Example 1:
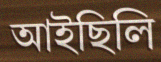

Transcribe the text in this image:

আইছিলি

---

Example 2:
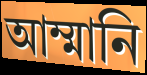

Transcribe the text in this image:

আম্মানি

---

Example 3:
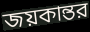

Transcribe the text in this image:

জয়কান্তর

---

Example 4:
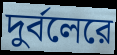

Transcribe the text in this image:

দুর্বলেরে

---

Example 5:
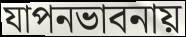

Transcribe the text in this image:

যাপনভাবনায়